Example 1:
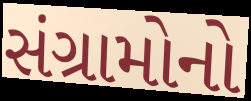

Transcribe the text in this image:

સંગ્રામોનો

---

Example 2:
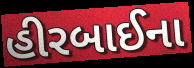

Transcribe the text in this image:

હીરબાઈના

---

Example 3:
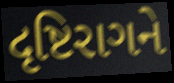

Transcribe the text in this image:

દૃષ્ટિરાગને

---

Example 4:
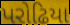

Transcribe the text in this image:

પરોઢિયા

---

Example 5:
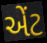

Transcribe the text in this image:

એંટ